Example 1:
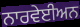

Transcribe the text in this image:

ਨਾਰਵੇਈਅਨ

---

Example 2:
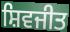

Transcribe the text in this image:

ਸ਼ਿਵਜੀਤ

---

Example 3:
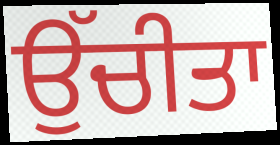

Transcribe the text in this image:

ਉੱਚੀਤਾ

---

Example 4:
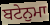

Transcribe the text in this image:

ਬਟੇਨੁਮਾ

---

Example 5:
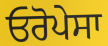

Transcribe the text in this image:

ਓਰੋਪੇਸਾ